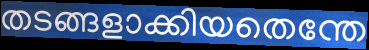
തടങ്ങളാക്കിയതെന്തേ